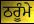
ਠਰੂੰਮੇ